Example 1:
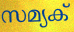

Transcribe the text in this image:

സമ്യക്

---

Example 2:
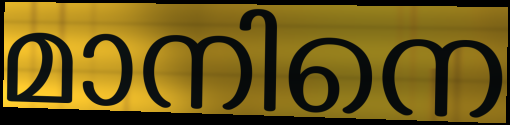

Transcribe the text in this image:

മാനിനെ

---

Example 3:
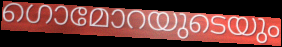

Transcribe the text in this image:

ഗൊമോറയുടെയും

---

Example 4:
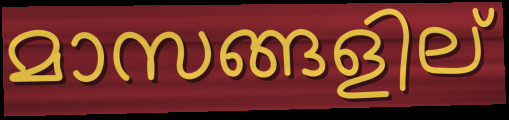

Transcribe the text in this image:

മാസങ്ങളില്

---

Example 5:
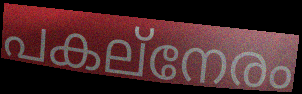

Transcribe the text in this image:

പകല്നേരം